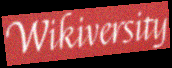
Wikiversity